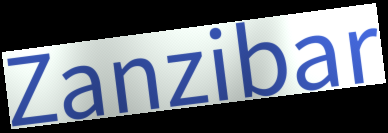
Zanzibar